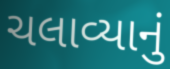
ચલાવ્યાનું